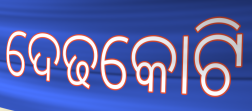
ଦେଢକୋଟି